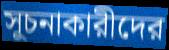
সূচনাকারীদের